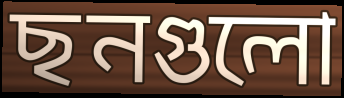
ছনগুলো